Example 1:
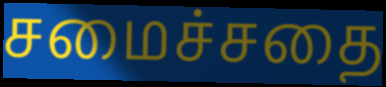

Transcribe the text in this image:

சமைச்சதை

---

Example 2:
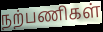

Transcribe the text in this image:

நற்பணிகள்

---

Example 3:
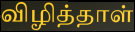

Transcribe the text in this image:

விழித்தாள்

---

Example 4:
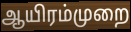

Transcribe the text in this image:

ஆயிரம்முறை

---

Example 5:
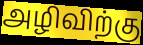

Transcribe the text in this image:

அழிவிற்கு